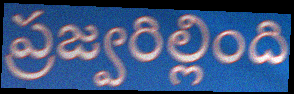
ప్రజ్వరిల్లింది